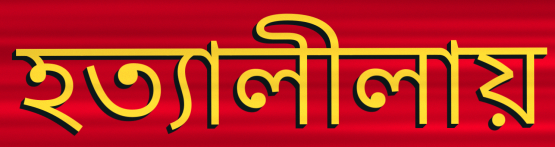
হত্যালীলায়